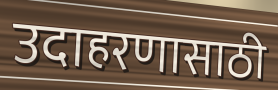
उदाहरणासाठी